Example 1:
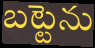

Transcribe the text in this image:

బట్టెను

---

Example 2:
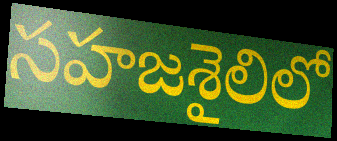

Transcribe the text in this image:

సహజశైలిలో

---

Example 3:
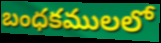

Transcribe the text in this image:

బంధకములలో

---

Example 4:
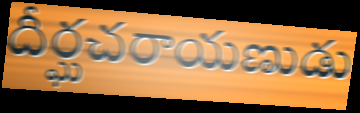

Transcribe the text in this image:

దీర్ఘచరాయణుడు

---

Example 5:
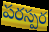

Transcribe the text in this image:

పరస్పర